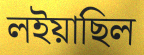
লইয়াছিল